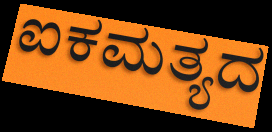
ಐಕಮತ್ಯದ